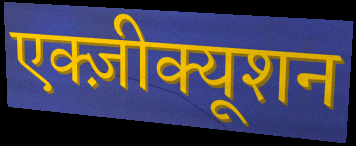
एक्ज़ीक्यूशन